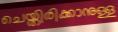
ചെയ്തിരിക്കാനുള്ള